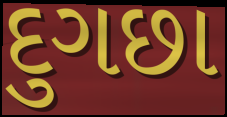
દુગછા